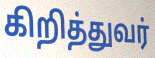
கிறித்துவர்